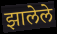
झालेले